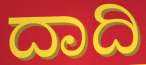
ದಾದಿ